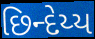
છિન્દેય્ય